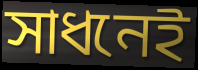
সাধনেই